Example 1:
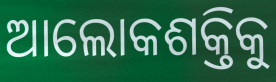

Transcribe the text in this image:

ଆଲୋକଶକ୍ତିକୁ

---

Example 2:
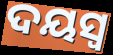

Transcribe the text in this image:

ଦୟସ୍ଵ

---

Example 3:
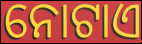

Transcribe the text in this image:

ନୋଟାଏ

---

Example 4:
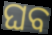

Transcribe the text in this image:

ଘବ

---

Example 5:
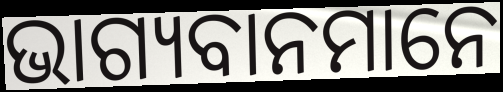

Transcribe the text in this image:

ଭାଗ୍ୟବାନମାନେ